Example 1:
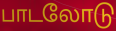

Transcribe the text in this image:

பாடலோடு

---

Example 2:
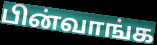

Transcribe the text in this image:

பின்வாங்க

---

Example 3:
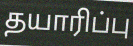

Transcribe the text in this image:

தயாரிப்பு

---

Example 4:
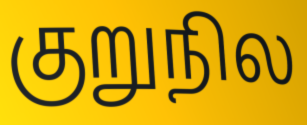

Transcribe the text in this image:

குறுநில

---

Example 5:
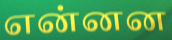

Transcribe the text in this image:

என்னன